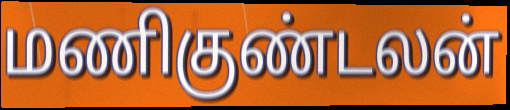
மணிகுண்டலன்